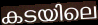
കടയിലെ